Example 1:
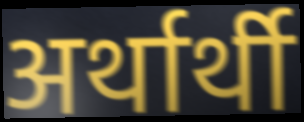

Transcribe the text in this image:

अर्थार्थी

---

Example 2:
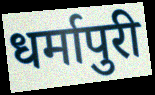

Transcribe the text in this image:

धर्मापुरी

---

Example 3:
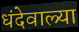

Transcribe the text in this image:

धंदेवाल्या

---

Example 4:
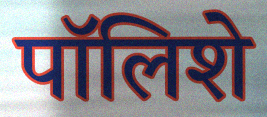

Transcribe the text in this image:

पॉलिशे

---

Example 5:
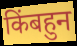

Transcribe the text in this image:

किंबहुन